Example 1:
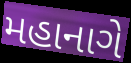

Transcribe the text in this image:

મહાનાગે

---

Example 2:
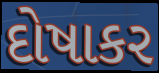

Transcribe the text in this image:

દોષાકર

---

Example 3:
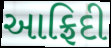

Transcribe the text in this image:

આફ્રિદી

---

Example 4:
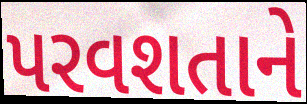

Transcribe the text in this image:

પરવશતાને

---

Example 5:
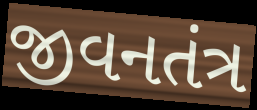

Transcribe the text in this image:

જીવનતંત્ર